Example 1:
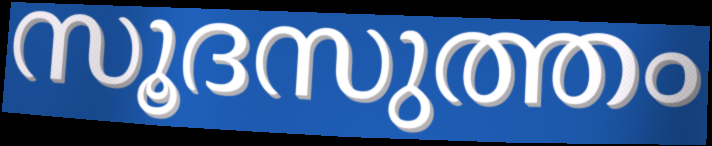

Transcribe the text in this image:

സൂദസുത്തം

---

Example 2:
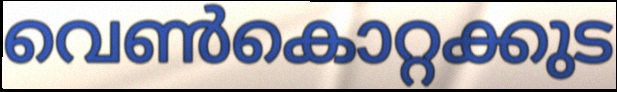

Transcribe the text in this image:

വെൺകൊറ്റക്കുട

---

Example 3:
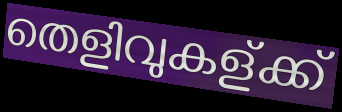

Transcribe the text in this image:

തെളിവുകള്ക്ക്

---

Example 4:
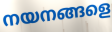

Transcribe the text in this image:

നയനങ്ങളെ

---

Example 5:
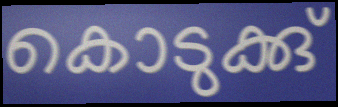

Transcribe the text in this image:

കൊടുക്കു്